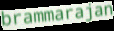
brammarajan